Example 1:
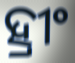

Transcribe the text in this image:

ହ୍ରୀଂ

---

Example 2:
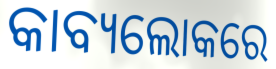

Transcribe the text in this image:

କାବ୍ୟଲୋକରେ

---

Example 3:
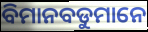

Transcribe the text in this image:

ବିମାନବଡୁମାନେ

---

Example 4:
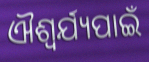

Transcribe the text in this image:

ଐଶ୍ୱର୍ଯ୍ୟପାଇଁ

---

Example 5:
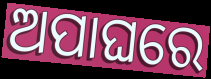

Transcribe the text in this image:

ଅପାଘରେ